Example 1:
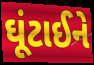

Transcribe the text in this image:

ઘૂંટાઈને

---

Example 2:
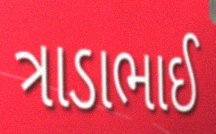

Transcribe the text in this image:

ત્રાડાભાઈ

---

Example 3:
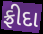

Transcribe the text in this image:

ફ્રીદા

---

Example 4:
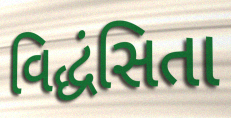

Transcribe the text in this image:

વિદ્ધંસિતા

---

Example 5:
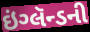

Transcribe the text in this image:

ઇંગ્લૅન્ડની